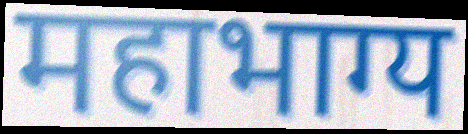
महाभाग्य